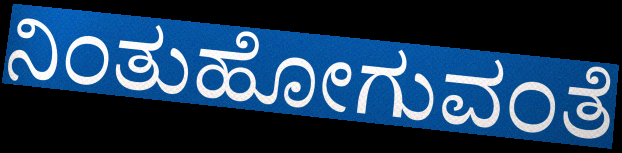
ನಿಂತುಹೋಗುವಂತೆ